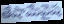
తేషామేవైష